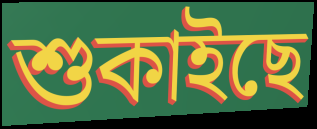
শুকাইছে